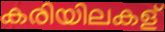
കരിയിലകള്